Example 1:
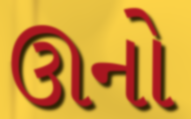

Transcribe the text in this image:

ઊનો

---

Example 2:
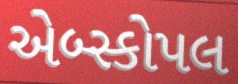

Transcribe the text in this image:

એબ્સ્કોપલ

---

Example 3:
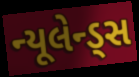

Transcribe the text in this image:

ન્યૂલેન્ડ્સ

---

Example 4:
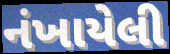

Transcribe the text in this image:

નંખાયેલી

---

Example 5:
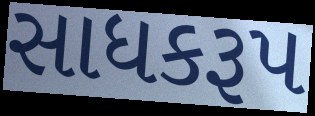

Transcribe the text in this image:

સાધકરૂપ